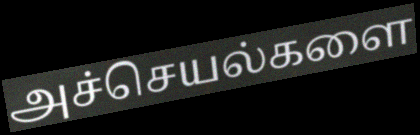
அச்செயல்களை